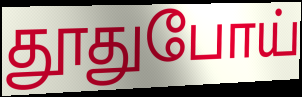
தூதுபோய்